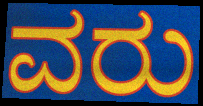
ವರು